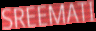
SREEMATI